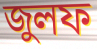
জুলফ